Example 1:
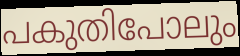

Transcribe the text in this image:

പകുതിപോലും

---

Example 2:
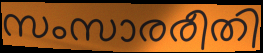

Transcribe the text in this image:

സംസാരരീതി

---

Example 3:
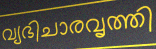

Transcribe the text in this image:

വ്യഭിചാരവൃത്തി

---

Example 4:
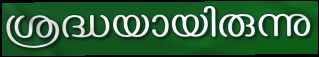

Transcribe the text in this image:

ശ്രദ്ധയായിരുന്നു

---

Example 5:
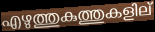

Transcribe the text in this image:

എഴുത്തുകുത്തുകളില്